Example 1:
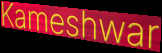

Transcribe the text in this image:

Kameshwar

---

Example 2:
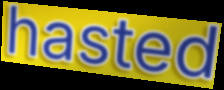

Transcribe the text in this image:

hasted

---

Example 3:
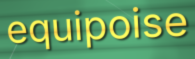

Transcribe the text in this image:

equipoise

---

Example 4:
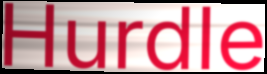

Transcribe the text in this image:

Hurdle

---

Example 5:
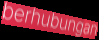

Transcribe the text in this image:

berhubungan